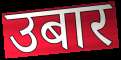
उबार